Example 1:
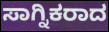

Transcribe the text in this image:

ಸಾಗ್ನಿಕರಾದ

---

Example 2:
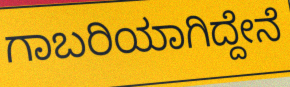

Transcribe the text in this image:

ಗಾಬರಿಯಾಗಿದ್ದೇನೆ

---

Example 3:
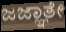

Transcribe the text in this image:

ಜಜ್ಞಾತೇ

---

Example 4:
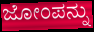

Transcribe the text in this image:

ಜೋಂಪನ್ನು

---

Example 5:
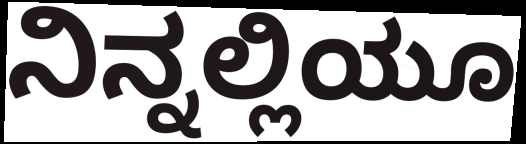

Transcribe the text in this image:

ನಿನ್ನಲ್ಲಿಯೂ